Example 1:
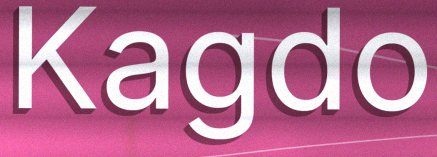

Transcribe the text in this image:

Kagdo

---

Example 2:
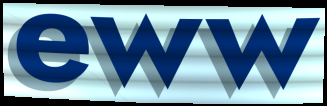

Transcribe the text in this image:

eww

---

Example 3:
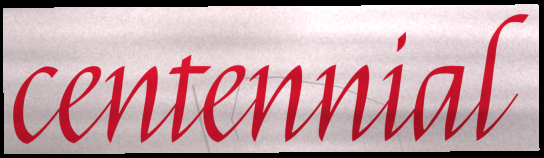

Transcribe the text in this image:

centennial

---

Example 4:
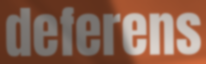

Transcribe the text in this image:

deferens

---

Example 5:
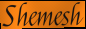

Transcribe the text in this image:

Shemesh